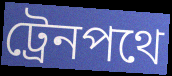
ট্রেনপথে